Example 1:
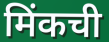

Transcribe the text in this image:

मिंकची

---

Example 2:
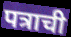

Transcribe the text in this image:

पत्राची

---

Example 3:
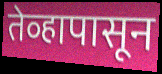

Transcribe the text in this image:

तेव्हापासून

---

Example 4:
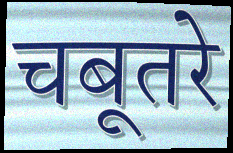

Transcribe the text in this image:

चबूतरे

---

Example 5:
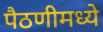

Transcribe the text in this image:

पैठणीमध्ये